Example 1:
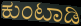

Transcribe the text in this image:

ಕುಂಟಾಡಿ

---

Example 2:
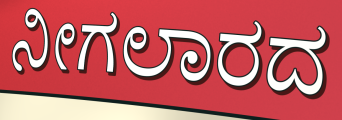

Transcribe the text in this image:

ನೀಗಲಾರದ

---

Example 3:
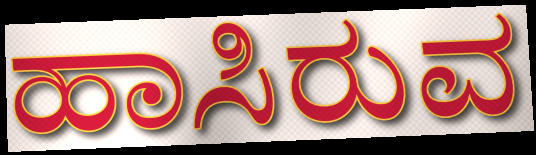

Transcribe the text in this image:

ಹಾಸಿರುವ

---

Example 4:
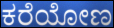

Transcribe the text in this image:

ಕರೆಯೋಣ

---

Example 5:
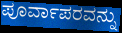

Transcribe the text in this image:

ಪೂರ್ವಾಪರವನ್ನು